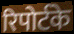
रिपोर्टके